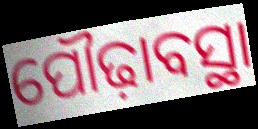
ପୌଢ଼ାବସ୍ଥା